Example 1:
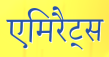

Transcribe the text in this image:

एमिरैट्स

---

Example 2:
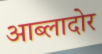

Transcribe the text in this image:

आब्लादोर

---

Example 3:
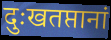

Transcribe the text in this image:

दुःखतप्तानां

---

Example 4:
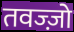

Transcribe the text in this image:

तवज्ज़ो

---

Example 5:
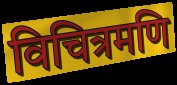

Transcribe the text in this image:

विचित्रमणि